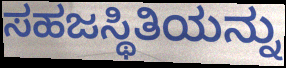
ಸಹಜಸ್ಥಿತಿಯನ್ನು